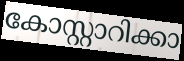
കോസ്റ്റാറിക്കാ